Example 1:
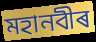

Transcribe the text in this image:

মহানবীৰ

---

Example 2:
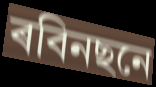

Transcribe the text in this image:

ৰবিনছনে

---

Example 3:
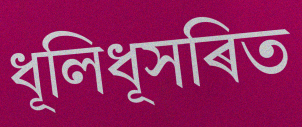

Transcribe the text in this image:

ধূলিধূসৰিত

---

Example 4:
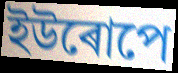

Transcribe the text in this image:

ইউৰোপে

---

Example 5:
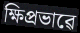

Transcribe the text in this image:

ক্ষিপ্ৰভাৱে